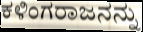
ಕಳಿಂಗರಾಜನನ್ನು